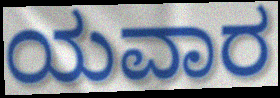
ಯವಾರ